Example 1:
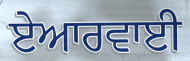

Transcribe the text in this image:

ਏਆਰਵਾਈ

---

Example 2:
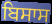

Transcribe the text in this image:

ਬਿਸਾਸ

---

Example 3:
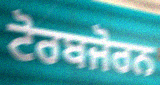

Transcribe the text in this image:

ਟੋਰਬਜੋਰਨ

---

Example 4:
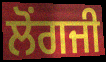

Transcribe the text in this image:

ਲੋਂਗਜੀ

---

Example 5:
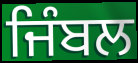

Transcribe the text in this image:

ਜਿੰਬਲ